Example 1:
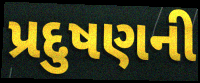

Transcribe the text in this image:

પ્રદુષણની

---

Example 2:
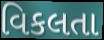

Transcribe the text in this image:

વિકલતા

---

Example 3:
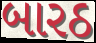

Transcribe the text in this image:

બારઠ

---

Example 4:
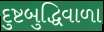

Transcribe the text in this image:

દુષ્ટબુદ્ધિવાળા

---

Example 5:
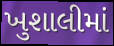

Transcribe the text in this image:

ખુશાલીમાં